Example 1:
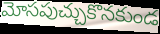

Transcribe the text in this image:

మోసపుచ్చుకొనకుండ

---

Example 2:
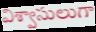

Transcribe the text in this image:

విశ్వాసులుగా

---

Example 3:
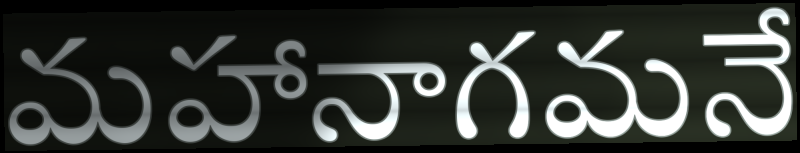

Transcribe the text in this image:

మహానాగమనే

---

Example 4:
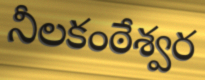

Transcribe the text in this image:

నీలకంఠేశ్వర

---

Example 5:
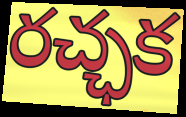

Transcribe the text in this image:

రచ్ఛక